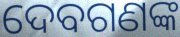
ଦେବଗଣଙ୍କ